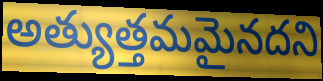
అత్యుత్తమమైనదని